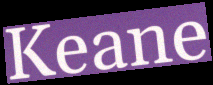
Keane